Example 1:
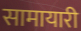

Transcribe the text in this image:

सामायारी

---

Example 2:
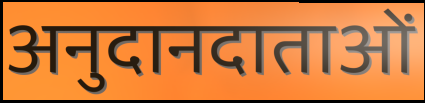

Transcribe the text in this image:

अनुदानदाताओं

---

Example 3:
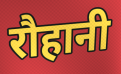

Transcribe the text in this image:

रौहानी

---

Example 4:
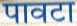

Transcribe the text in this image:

पावटा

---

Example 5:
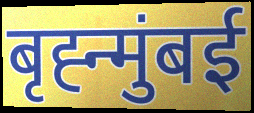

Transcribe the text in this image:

बृह्न्मुंबई